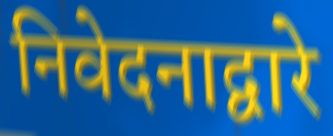
निवेदनाद्वारे